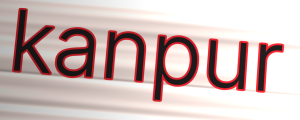
kanpur